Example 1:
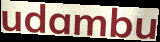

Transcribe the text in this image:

udambu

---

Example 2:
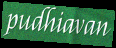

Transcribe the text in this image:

pudhiavan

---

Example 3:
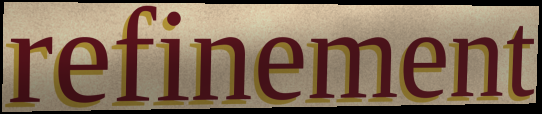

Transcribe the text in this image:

refinement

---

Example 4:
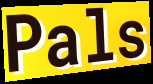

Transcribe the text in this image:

Pals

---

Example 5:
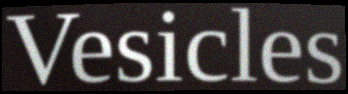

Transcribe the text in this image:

Vesicles